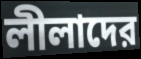
লীলাদের